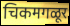
चिकमगळूर